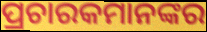
ପ୍ରଚାରକମାନଙ୍କର